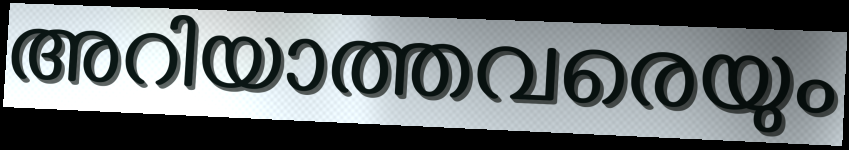
അറിയാത്തവരെയും